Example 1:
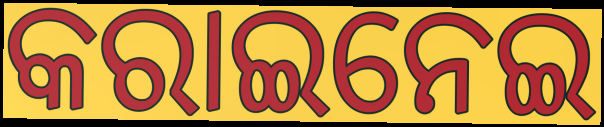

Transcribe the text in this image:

କରାଇନେଇ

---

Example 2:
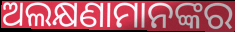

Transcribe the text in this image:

ଅଲକ୍ଷଣାମାନଙ୍କର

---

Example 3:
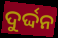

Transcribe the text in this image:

ଦୁର୍ଦ୍ଦନ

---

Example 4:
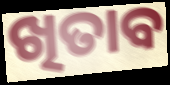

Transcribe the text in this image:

ଖିତାବ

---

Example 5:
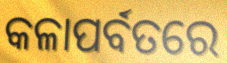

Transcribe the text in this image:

କଳାପର୍ବତରେ